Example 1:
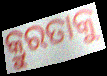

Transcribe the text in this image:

କ୍ରୁରତାକୁ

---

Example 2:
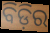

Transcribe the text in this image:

ବିଡ଼ିର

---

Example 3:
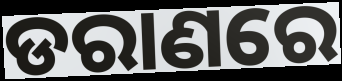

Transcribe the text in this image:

ଡରାଣରେ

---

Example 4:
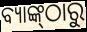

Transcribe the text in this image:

ବ୍ୟାଙ୍କ୍‌ଠାରୁ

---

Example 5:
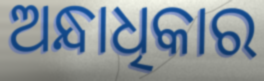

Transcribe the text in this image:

ଅନ୍ଧାଧିକାର